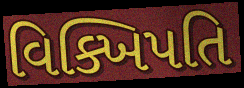
વિક્ખિપતિ